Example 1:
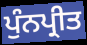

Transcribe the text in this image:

ਪੁੰਨਪ੍ਰੀਤ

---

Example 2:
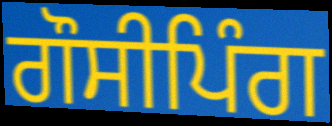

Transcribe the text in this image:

ਗੌਸੀਪਿੰਗ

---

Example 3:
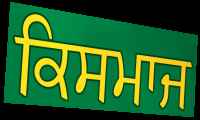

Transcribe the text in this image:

ਕਿਸਮਾਜ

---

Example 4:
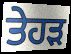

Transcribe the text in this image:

ਤੇਹੜ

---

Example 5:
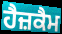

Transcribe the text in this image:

ਹੈਜ਼ਕੈਮ